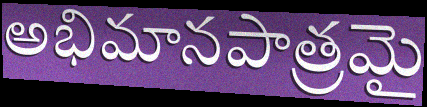
అభిమానపాత్రమై